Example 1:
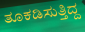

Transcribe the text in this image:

ತೂಕಡಿಸುತ್ತಿದ್ದ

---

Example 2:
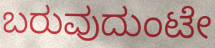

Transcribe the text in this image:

ಬರುವುದುಂಟೇ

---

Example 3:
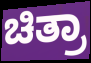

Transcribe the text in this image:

ಚಿತ್ರಾ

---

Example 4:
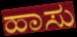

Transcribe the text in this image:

ಹಾಸು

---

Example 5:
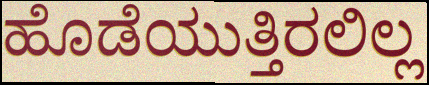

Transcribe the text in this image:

ಹೊಡೆಯುತ್ತಿರಲಿಲ್ಲ